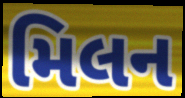
મિલન